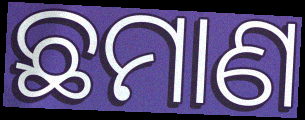
ଛମାଣ